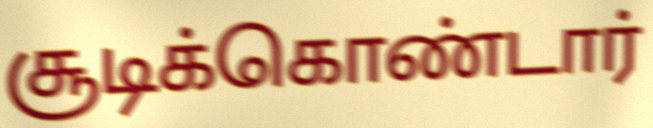
சூடிக்கொண்டார்